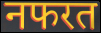
नफरत